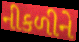
નીકળીને